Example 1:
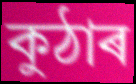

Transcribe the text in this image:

কুঠাৰ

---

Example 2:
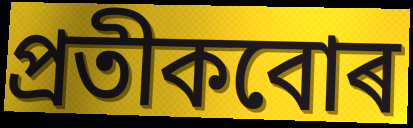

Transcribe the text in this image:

প্ৰতীকবোৰ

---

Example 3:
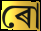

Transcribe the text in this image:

ৰো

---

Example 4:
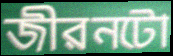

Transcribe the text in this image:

জীৱনটো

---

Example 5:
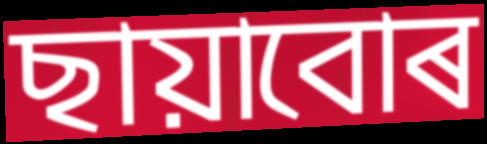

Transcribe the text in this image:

ছায়াবোৰ